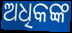
ଅଧିକଙ୍କ